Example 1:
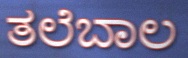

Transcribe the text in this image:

ತಲೆಬಾಲ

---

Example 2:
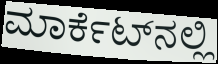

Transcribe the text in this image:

ಮಾರ್ಕೆಟ್‍ನಲ್ಲಿ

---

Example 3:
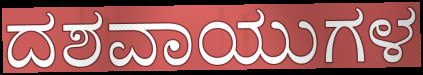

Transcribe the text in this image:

ದಶವಾಯುಗಳ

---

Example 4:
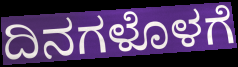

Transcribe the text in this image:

ದಿನಗಳೊಳಗೆ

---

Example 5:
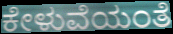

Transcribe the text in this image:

ಕೇಳುವೆಯಂತೆ